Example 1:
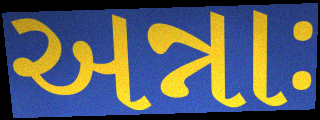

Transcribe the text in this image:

અન્નાઃ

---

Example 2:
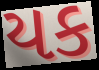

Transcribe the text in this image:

યક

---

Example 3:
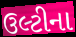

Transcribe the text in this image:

ઉલ્ટીના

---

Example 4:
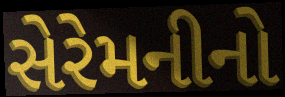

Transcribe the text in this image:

સેરેમનીનો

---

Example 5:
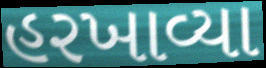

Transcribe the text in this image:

હરખાવ્યા